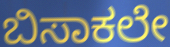
ಬಿಸಾಕಲೇ